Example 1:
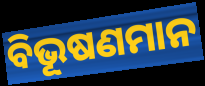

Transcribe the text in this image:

ବିଭୂଷଣମାନ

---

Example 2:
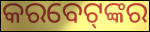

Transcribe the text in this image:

କରବେଟ୍‌ଙ୍କର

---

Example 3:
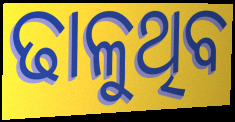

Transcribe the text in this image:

ଢାଳୁଥିବ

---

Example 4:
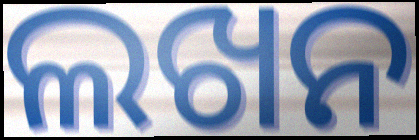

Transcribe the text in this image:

ଲଖନ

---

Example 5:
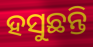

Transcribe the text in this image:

ହସୁଛନ୍ତି